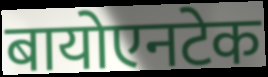
बायोएनटेक